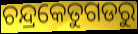
ଚନ୍ଦ୍ରକେତୁଗଡରୁ